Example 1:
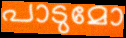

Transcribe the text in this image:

പാടുമോ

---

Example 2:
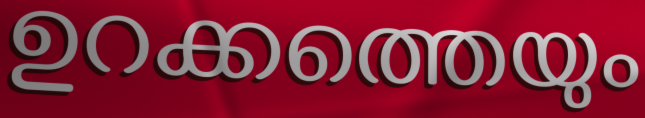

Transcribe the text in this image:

ഉറക്കത്തെയും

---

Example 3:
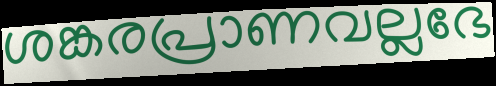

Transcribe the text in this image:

ശങ്കരപ്രാണവല്ലഭേ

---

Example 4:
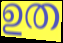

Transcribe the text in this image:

ഉത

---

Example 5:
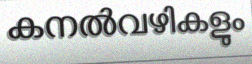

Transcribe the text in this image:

കനൽവഴികളും